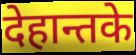
देहान्तके